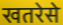
खतरेसे